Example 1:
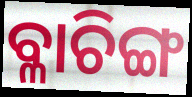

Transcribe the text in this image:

ବ୍ଳାଚିଙ୍ଗ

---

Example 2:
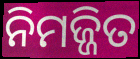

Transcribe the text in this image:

ନିମଜ୍ଜିତ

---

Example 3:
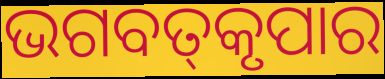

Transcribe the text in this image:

ଭଗବତ୍‌କୃପାର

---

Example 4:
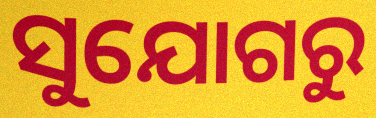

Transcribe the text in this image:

ସୁଯୋଗରୁ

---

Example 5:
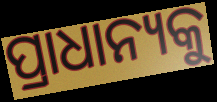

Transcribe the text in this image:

ପ୍ରାଧାନ୍ୟକୁ